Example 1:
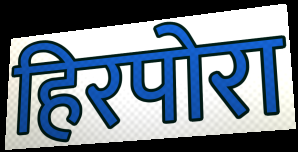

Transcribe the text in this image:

हिरपोरा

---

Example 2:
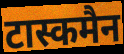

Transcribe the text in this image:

टास्कमैन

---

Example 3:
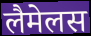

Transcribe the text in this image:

लैमेलस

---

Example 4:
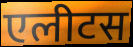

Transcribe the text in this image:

एलीटस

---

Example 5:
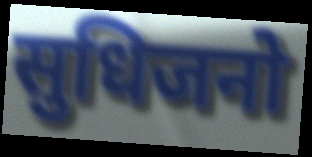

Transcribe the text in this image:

सुधिजनो